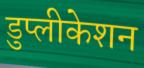
डुप्लीकेशन